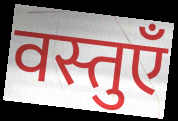
वस्‍तुएँ